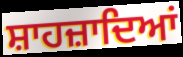
ਸ਼ਾਹਜ਼ਾਦਿਆਂ